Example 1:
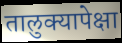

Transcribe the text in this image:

तालुक्यापेक्षा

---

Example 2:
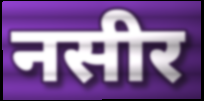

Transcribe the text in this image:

नसीर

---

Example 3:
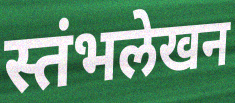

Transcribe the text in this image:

स्तंभलेखन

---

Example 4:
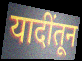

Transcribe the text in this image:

यादींतून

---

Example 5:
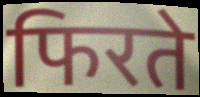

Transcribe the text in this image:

फिरते